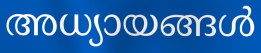
അധ്യായങ്ങൾ